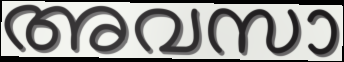
അവസാ